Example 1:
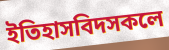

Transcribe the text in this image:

ইতিহাসবিদসকলে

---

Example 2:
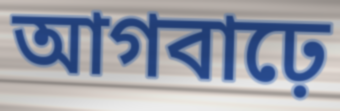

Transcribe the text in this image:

আগবাঢ়ে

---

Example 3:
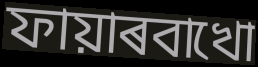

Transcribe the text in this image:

ফায়াৰবাখো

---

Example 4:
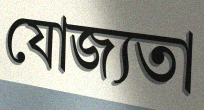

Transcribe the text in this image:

যোজ্যতা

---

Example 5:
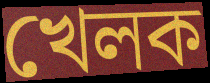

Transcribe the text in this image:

খেলক